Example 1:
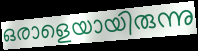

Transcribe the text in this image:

ഒരാളെയായിരുന്നു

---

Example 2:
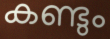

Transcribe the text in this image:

കണ്ടും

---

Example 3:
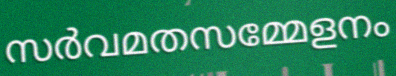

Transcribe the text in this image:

സർവമതസമ്മേളനം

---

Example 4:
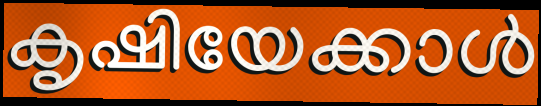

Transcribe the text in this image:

കൃഷിയേക്കാൾ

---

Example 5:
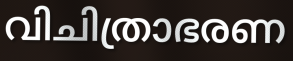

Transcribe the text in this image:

വിചിത്രാഭരണ